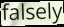
falsely